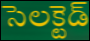
సెలక్టెడ్